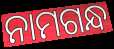
ନାମଗନ୍ଧ